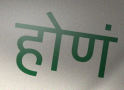
होणं